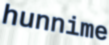
hunnime